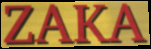
ZAKA